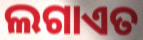
ଲଗାଏତ